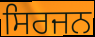
ਸਿਰਜਨ